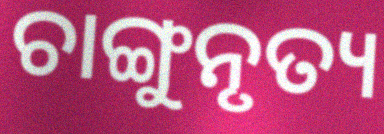
ଚାଙ୍ଗୁନୃତ୍ୟ